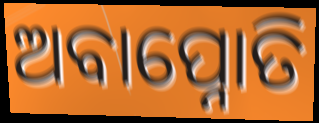
ଅବାପ୍ନୋତି